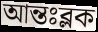
আন্তঃব্লক